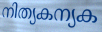
നിത്യകന്യക